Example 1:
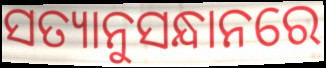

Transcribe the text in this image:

ସତ୍ୟାନୁସନ୍ଧାନରେ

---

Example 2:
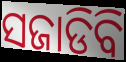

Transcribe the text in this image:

ସଜାଡିବି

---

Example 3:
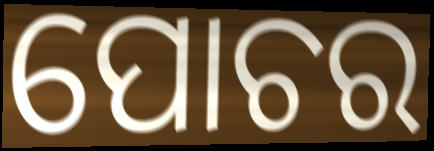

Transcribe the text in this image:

ପୋଚର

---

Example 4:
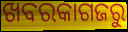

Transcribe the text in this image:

ଖବରକାଗଜରୁ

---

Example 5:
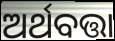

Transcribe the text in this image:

ଅର୍ଥବତ୍ତା